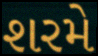
શરમે